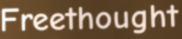
Freethought